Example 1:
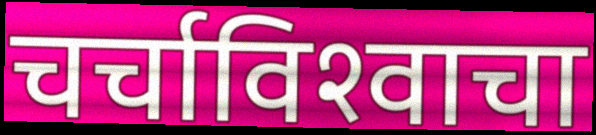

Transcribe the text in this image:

चर्चाविश्वाचा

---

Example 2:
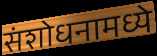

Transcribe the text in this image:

संशोधनामध्ये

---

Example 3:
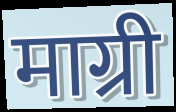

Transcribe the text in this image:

माग्री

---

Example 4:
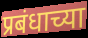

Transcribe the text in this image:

प्रबंधाच्या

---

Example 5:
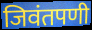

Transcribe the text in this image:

जिवंतपणी